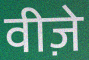
वीज़े